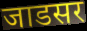
जाडसर